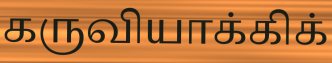
கருவியாக்கிக்